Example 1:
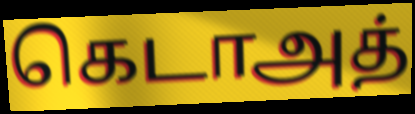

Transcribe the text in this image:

கெடாஅத்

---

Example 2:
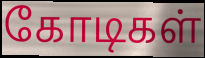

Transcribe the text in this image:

கோடிகள்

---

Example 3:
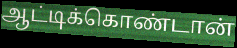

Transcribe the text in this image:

ஆட்டிக்கொண்டான்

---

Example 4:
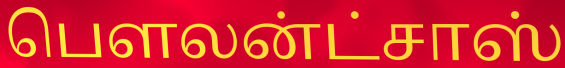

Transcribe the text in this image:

பௌலன்ட்சாஸ்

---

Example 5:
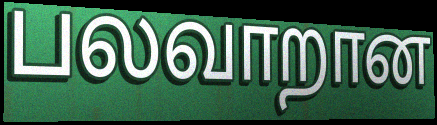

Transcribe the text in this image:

பலவாறான